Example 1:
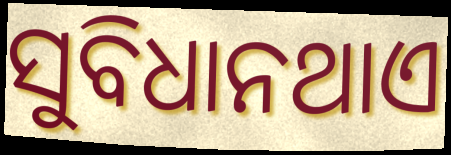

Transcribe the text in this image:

ସୁବିଧାନଥାଏ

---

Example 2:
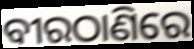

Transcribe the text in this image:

ବୀରଠାଣିରେ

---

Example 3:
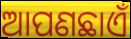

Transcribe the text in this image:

ଆପଣଛାଏଁ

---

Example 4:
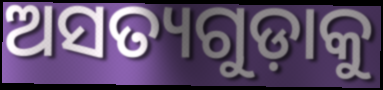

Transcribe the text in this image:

ଅସତ୍ୟଗୁଡ଼ାକୁ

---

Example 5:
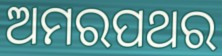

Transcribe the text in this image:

ଅମରପଥର